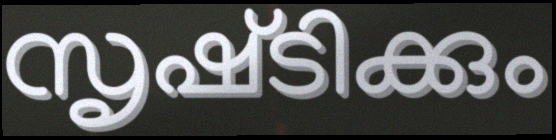
സൃഷ്‌ടിക്കും